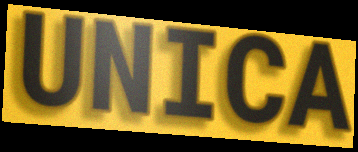
UNICA